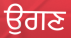
ਉਗਣ